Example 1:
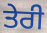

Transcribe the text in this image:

ਤੇਰੀ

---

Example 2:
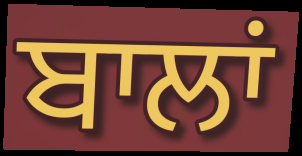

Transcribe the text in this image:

ਬਾਲਾਂ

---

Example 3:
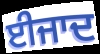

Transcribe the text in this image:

ਈਜਾਦ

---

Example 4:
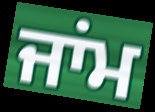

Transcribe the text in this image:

ਜਾਂਮ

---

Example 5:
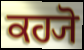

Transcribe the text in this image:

ਕਹ੍ਯੋ